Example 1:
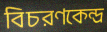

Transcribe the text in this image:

বিচরণকেন্দ্র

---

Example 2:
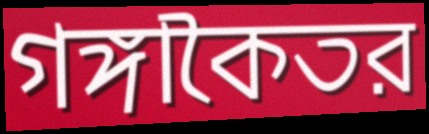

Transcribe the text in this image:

গঙ্গাকৈতর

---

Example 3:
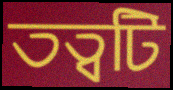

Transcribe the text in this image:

তত্বটি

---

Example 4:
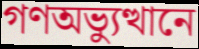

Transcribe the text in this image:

গণঅভ্যুত্থানে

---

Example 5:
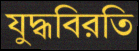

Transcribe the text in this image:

যুদ্ধবিরতি